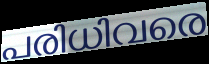
പരിധിവരെ